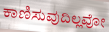
ಕಾಣಿಸುವುದಿಲ್ಲವೋ